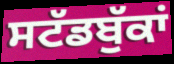
ਸਟੱਡਬੁੱਕਾਂ